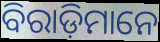
ବିରାଡ଼ିମାନେ